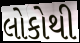
લોકોથી